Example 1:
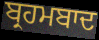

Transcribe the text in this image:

ਬ੍ਰਹਮਬਾਦ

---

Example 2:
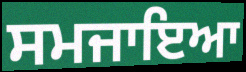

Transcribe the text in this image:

ਸਮਜਾਇਆ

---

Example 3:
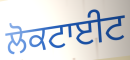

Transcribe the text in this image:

ਲੋਕਟਾਈਟ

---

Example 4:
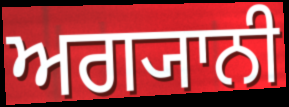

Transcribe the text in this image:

ਅਗ੍ਯਾਨੀ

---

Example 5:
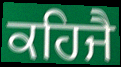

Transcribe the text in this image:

ਕਹਿਜੈ